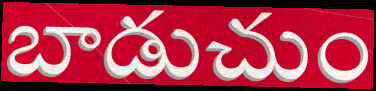
బాడుచుం